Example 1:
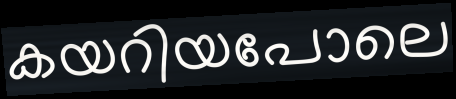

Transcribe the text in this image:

കയറിയപോലെ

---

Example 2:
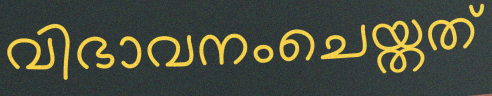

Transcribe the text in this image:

വിഭാവനംചെയ്തത്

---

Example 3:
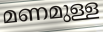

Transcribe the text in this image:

മണമുള്ള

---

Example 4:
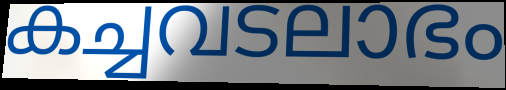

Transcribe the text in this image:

കച്ചവടലാഭം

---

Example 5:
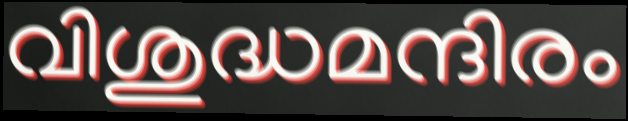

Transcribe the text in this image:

വിശുദ്ധമന്ദിരം